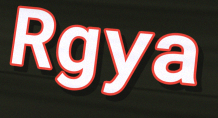
Rgya